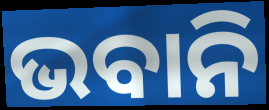
ଭବାନି